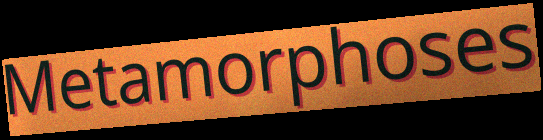
Metamorphoses